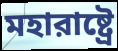
মহারাষ্ট্রে